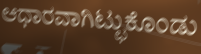
ಆಧಾರವಾಗಿಟ್ಟುಕೊಂಡು